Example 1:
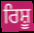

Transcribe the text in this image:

ਰਿਸ਼ੂ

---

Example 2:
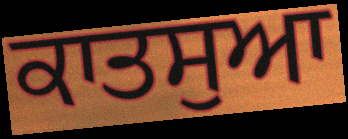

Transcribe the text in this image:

ਕਾਤਸੁਆ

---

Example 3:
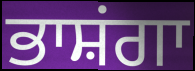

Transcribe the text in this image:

ਭਾਸ਼ਂਗਾ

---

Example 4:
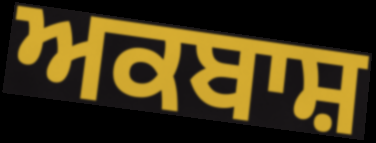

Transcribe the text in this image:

ਅਕਬਾਸ਼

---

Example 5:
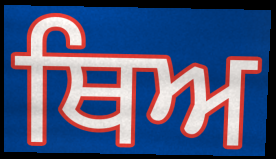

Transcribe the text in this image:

ਥਿਅ